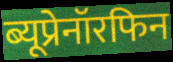
ब्यूप्रेनॉरफिन